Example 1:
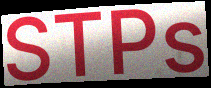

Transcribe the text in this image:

STPs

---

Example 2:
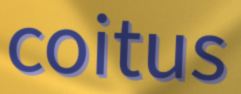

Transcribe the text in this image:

coitus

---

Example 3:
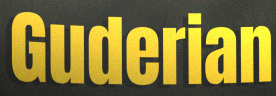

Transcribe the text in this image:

Guderian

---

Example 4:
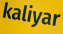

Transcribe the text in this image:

kaliyar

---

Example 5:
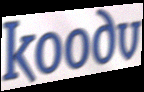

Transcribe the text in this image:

koodu